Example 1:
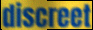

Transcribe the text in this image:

discreet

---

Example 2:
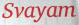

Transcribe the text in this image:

Svayam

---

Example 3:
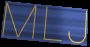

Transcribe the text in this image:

MLJ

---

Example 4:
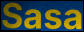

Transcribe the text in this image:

Sasa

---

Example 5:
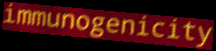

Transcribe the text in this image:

immunogenicity